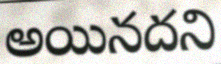
అయినదని